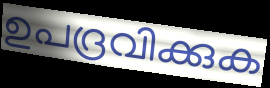
ഉപദ്രവിക്കുക